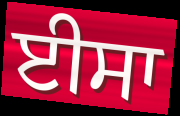
ਈਸਾ